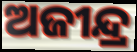
ଅଜୀନ୍ଦ୍ର